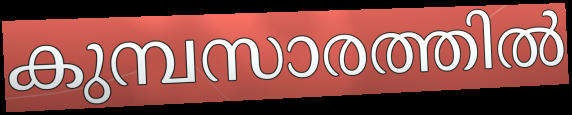
കുമ്പസാരത്തിൽ